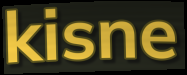
kisne